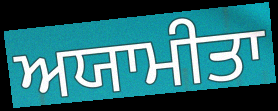
ਅਯਾਮੀਤਾ